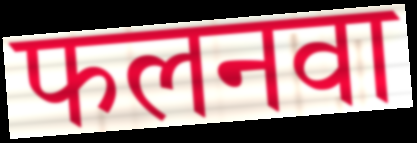
फलनवा